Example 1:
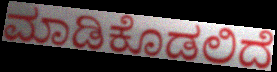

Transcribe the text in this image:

ಮಾಡಿಕೊಡಲಿದೆ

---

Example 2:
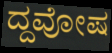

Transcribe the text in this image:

ದ್ದವೋಷ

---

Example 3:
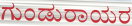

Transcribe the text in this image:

ಗುಂಡುರಾಯರ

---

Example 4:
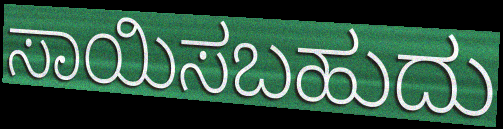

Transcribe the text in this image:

ಸಾಯಿಸಬಹುದು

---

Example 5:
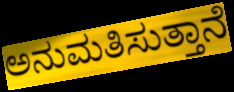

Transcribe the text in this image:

ಅನುಮತಿಸುತ್ತಾನೆ